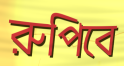
রুপিবে